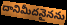
దానిమీదనైనను